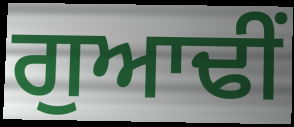
ਗੁਆਢੀਂ